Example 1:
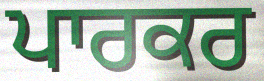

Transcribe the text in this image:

ਪਾਰਕਰ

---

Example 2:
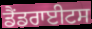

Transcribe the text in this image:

ਡੈਂਡਰਾਈਟਸ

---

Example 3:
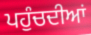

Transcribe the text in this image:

ਪਹੁੰਚਦੀਆਂ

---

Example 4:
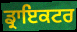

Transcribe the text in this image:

ਡ੍ਰਾਇਕਟਰ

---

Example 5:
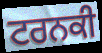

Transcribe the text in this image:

ਟਰਨਕੀ